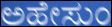
ಅಹೇಸುಂ